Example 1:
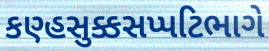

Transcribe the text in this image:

કણ્હસુક્કસપ્પટિભાગે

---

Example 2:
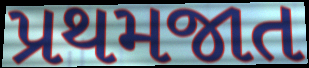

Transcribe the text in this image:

પ્રથમજાત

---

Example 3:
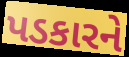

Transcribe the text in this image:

પડકારને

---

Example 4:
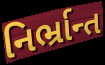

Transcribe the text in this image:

નિર્ભ્રાન્ત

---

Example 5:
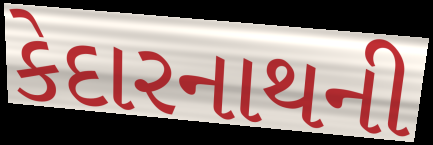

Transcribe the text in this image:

કેદારનાથની